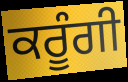
ਕਰੂੰਗੀ